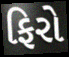
ફિરો